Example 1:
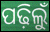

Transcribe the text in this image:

ପଢ଼ିଲୁଁ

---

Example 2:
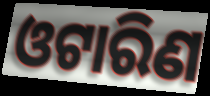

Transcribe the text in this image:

ଓଟାରିଣ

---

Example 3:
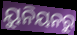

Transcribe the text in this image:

ୟୁନିୟନରୁ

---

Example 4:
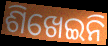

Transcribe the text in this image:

ଶିଖେଇନି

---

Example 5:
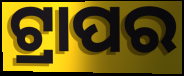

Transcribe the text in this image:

ଟ୍ରାପର